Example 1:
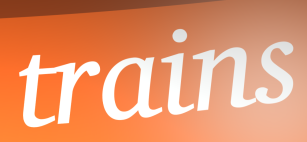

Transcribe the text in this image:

trains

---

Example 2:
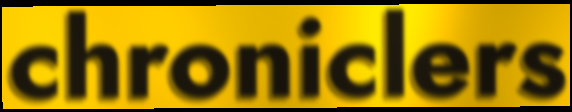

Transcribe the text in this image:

chroniclers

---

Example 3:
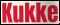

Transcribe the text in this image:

Kukke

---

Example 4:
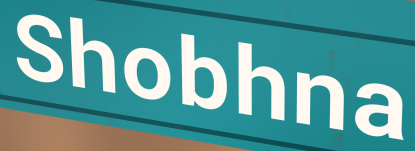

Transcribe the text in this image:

Shobhna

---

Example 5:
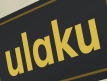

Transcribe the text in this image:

ulaku